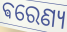
ଵରେଣ୍ୟ